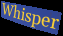
Whisper